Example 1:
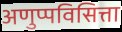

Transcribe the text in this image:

अणुप्पविसित्ता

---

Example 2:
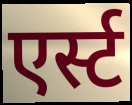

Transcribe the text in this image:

एर्स्ट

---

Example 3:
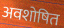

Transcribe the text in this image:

अवशोषित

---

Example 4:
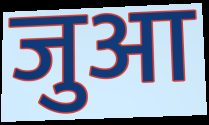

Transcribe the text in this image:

जुआ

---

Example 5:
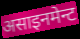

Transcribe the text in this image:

असाइनमेन्ट